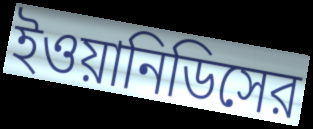
ইওয়ানিডিসের